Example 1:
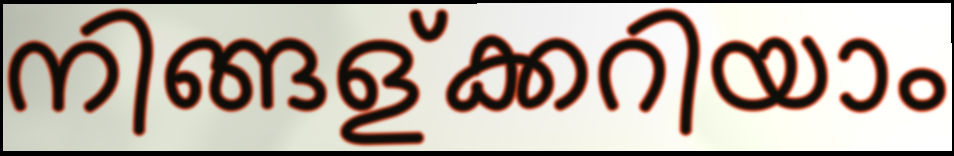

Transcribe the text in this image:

നിങ്ങള്ക്കറിയാം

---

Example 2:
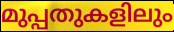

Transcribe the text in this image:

മുപ്പതുകളിലും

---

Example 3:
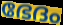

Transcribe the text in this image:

ഭേദം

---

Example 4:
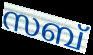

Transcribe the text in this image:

സബ്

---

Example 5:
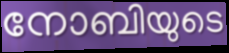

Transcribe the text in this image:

നോബിയുടെ